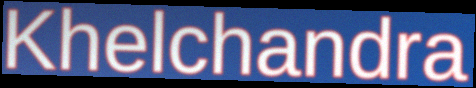
Khelchandra